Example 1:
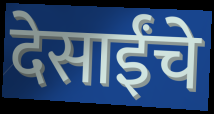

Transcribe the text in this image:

देसाईंचे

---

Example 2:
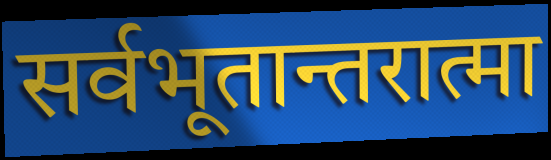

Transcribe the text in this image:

सर्वभूतान्तरात्मा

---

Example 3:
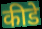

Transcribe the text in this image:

कीडे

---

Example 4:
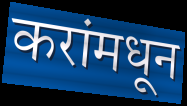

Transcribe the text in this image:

करांमधून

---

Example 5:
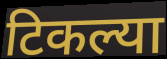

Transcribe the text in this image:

टिकल्या